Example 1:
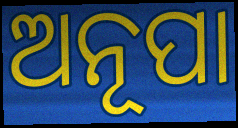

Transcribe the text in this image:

ଅନୂପା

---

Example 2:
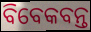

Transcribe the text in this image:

ବିବେକବନ୍ତ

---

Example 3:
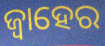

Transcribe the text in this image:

ଜ୍ୱାହେର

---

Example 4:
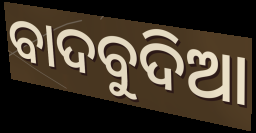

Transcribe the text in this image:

ବାଦବୁଦିଆ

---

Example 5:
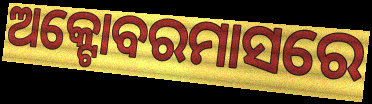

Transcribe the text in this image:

ଅକ୍ଟୋବରମାସରେ